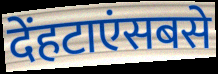
देंहटाएंसबसे